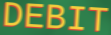
DEBIT